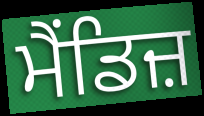
ਮੈਂਡਿਜ਼